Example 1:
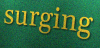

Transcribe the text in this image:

surging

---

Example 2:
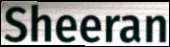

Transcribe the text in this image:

Sheeran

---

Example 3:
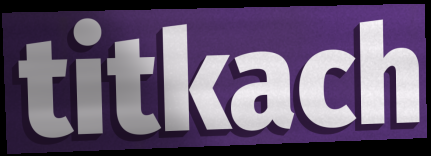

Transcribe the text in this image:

titkach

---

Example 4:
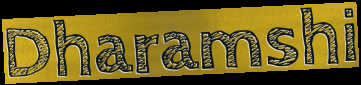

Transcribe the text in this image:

Dharamshi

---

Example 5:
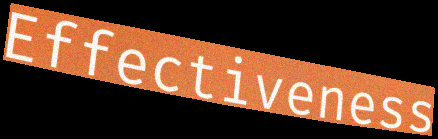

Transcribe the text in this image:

Effectiveness